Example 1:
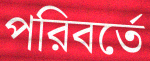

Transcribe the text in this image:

পরিবর্তে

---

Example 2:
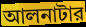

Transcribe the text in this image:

আলনাটার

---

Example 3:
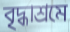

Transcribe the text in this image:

বৃদ্ধাশ্রমে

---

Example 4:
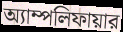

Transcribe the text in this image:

অ্যাম্পলিফায়ার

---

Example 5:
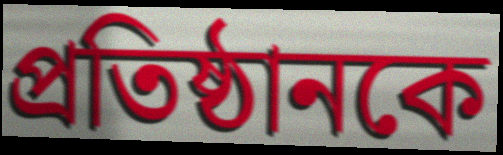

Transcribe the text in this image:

প্রতিষ্ঠানকে